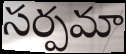
సర్పమా